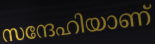
സന്ദേഹിയാണ്